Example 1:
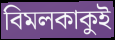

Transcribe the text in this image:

বিমলকাকুই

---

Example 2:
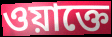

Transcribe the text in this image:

ওয়াক্তে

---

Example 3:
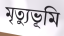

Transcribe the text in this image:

মৃত্যুভূমি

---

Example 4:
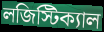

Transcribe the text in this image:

লজিস্টিক্যাল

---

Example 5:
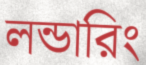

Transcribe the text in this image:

লন্ডারিং